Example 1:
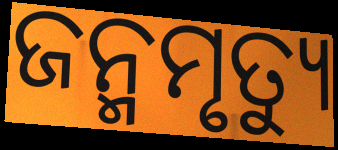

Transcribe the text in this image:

ଜନ୍ମମୃତ୍ୟୁ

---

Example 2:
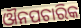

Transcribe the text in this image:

ଔନପଚାରିକ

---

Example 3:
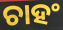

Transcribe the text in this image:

ଚାହଂ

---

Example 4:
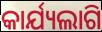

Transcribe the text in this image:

କାର୍ଯ୍ୟଲାଗି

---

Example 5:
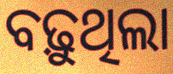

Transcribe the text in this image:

ବଢ଼ୁଥିଲା